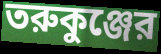
তরুকুঞ্জের